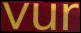
vur